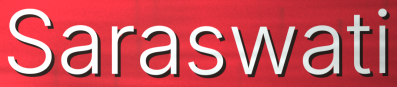
Saraswati